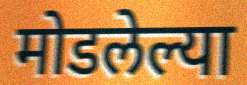
मोडलेल्या